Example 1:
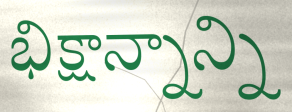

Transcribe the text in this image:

భిక్షాన్నాన్ని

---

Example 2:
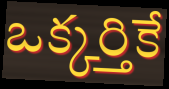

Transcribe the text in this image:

ఒక్కర్తికే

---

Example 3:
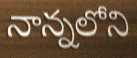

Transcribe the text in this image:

నాన్నలోని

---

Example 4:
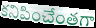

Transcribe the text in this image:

కనిపించేంతగా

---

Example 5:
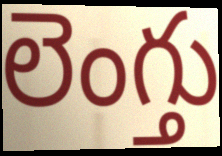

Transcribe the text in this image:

లెంగ్తు